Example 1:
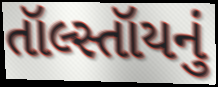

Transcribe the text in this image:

તૉલ્સ્તૉયનું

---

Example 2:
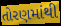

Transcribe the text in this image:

તોરણમાંથી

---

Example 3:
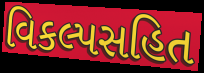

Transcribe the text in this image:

વિકલ્પસહિત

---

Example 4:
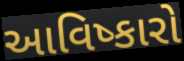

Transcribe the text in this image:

આવિષ્કારો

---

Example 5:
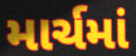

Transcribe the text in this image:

માર્ચમાં